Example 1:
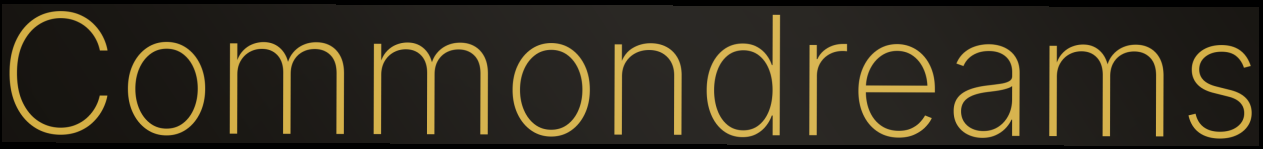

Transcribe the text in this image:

Commondreams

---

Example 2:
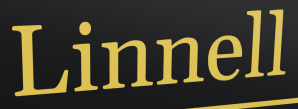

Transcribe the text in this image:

Linnell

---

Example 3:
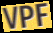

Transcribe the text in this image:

VPF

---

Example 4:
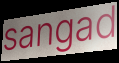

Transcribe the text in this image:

sangad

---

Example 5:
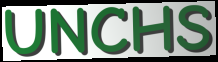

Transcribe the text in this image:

UNCHS